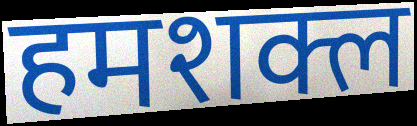
हमशक्ल